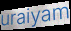
uraiyam